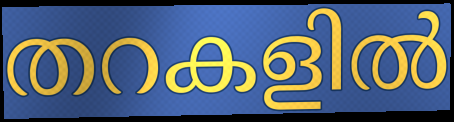
തറകളിൽ